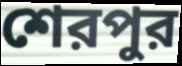
শেরপুর